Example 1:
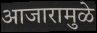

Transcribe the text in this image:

आजारामुळे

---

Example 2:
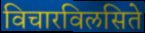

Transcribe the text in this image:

विचारविलसिते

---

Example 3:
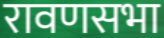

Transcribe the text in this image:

रावणसभा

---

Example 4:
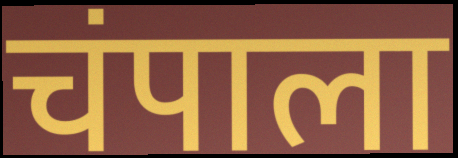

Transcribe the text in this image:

चंपाला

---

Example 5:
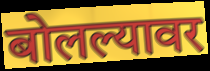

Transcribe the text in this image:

बोलल्यावर